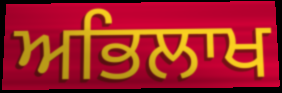
ਅਭਿਲਾਖ